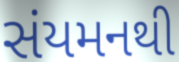
સંયમનથી